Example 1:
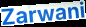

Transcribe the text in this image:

Zarwani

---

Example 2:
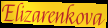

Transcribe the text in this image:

Elizarenkova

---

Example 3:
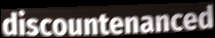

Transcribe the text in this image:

discountenanced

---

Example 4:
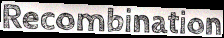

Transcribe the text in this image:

Recombination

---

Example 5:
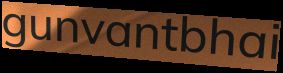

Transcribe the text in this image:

gunvantbhai